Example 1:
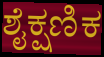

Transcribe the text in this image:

ಶೈಕ್ಷಣಿಕ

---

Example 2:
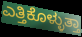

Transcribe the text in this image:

ಎತ್ತಿಕೊಳ್ಳುತ್ತಾ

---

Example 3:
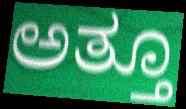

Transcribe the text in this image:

ಅತ್ತೂ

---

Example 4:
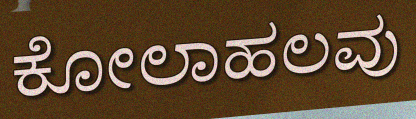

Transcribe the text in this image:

ಕೋಲಾಹಲವು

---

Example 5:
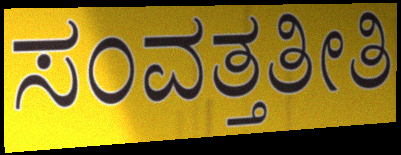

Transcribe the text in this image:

ಸಂವತ್ತತೀತಿ